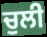
ਚੁਲੀ